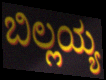
ಬಿಲ್ಲಯ್ಯ